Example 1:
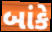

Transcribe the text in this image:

બાંકે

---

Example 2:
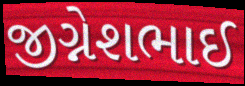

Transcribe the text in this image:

જીગ્નેશભાઈ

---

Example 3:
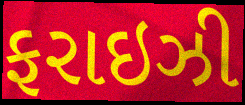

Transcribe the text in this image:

ફરાઇઝી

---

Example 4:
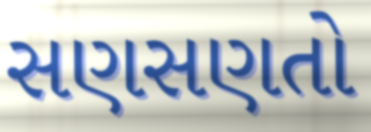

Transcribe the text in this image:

સણસણતો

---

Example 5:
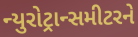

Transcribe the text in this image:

ન્યુરોટ્રાન્સમીટરને